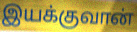
இயக்குவான்